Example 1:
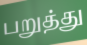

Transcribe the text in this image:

பறுத்து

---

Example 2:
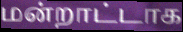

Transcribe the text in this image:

மன்றாட்டாக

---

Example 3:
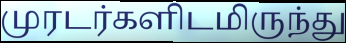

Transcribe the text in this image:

முரடர்களிடமிருந்து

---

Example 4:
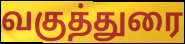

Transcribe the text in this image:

வகுத்துரை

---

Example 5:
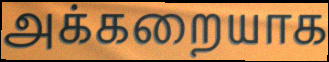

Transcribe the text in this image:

அக்கறையாக